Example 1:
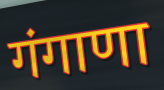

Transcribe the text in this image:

गंगाणा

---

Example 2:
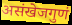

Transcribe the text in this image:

असंखेजगुणं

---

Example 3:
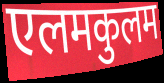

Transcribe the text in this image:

एलमकुलम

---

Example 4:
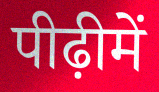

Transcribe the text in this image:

पीढ़ीमें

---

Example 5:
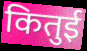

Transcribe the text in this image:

कितुई